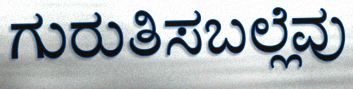
ಗುರುತಿಸಬಲ್ಲೆವು